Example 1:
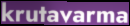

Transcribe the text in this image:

krutavarma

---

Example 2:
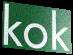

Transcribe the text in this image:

kok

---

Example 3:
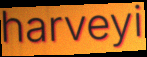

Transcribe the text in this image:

harveyi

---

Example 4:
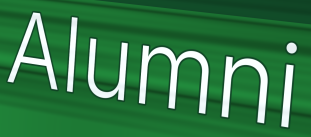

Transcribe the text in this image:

Alumni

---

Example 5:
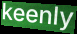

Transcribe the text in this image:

keenly